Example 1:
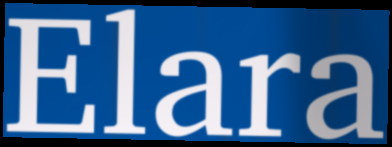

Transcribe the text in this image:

Elara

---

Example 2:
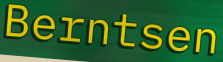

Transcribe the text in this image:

Berntsen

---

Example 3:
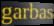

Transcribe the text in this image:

garbas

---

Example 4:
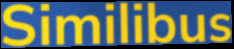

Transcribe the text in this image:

Similibus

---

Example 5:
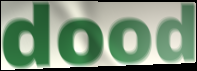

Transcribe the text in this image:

dood